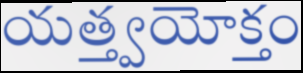
యత్త్వయోక్తం